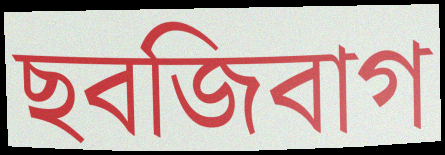
ছবজিবাগ